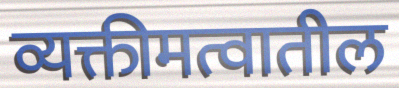
व्यक्तीमत्वातील